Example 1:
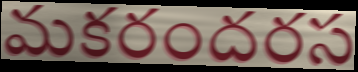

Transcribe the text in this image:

మకరందరస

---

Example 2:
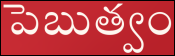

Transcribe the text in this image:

పెబుత్వం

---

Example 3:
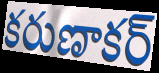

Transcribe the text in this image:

కరుణాకర్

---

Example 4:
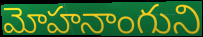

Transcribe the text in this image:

మోహనాంగుని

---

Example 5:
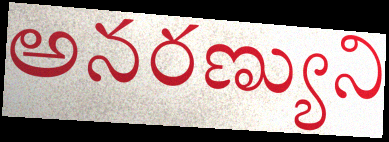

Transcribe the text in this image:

అనరణ్యుని